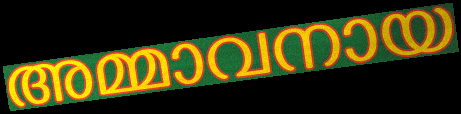
അമ്മാവനായ